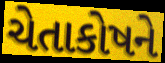
ચેતાકોષને